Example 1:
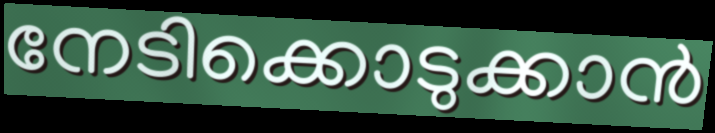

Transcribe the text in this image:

നേടിക്കൊടുക്കാൻ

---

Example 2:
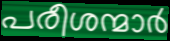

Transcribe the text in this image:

പരീശന്മാർ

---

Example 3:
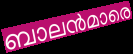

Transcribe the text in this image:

ബാലൻമാരെ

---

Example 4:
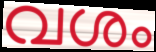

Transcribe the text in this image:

വശം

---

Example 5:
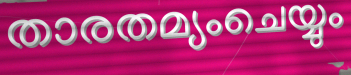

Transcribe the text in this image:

താരതമ്യംചെയ്യും